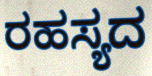
ರಹಸ್ಯದ